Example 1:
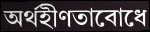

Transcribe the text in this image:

অর্থহীণতাবোধে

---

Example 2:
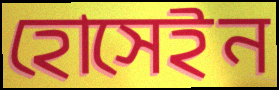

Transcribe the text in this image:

হোসেইন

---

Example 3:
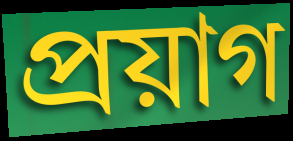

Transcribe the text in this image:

প্রয়াগ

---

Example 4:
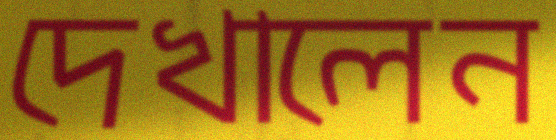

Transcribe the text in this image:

দেখালেন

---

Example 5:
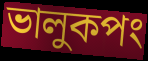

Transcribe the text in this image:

ভালুকপং